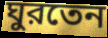
ঘুরতেন